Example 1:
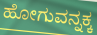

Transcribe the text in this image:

ಹೋಗುವನ್ನಕ್ಕ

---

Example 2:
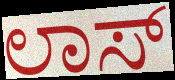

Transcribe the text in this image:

ಲಾಸ್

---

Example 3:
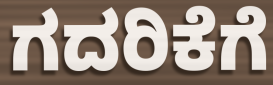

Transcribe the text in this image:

ಗದರಿಕೆಗೆ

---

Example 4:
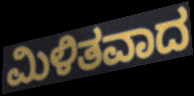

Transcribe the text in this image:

ಮಿಳಿತವಾದ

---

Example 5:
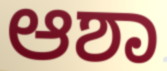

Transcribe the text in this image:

ಆಶಾ